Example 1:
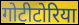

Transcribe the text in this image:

गोटीटोरिया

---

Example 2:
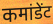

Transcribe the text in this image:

कमांडेंट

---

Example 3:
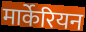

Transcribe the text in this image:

मार्केरियन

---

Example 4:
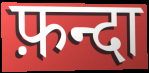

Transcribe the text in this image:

फ़न्दा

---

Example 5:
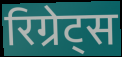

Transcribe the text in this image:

रिग्रेट्स